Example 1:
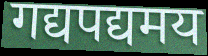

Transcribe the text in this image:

गद्यपद्यमय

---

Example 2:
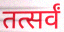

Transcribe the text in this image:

तत्सर्वं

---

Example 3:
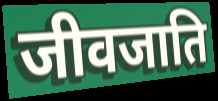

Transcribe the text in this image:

जीवजाति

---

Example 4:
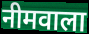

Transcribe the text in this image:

नीमवाला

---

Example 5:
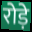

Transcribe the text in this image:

रोड़े